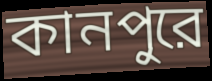
কানপুরে